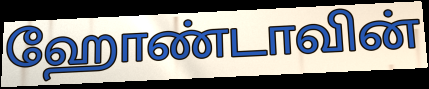
ஹோண்டாவின்